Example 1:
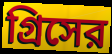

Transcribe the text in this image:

গ্রিসের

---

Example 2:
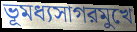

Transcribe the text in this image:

ভূমধ্যসাগরমুখে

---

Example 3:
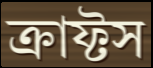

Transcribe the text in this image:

ক্রাফ্টস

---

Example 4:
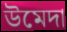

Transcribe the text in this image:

উমেদা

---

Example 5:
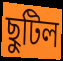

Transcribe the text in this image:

ছুটিল